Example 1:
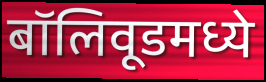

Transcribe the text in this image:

बॉलिवूडमध्ये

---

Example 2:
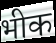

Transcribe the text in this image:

भीक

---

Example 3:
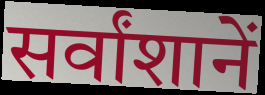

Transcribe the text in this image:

सर्वांशानें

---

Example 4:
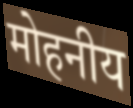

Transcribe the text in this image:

मोहनीय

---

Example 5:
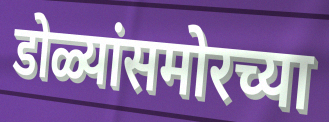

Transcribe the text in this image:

डोळ्यांसमोरच्या